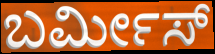
ಬರ್ಮೀಸ್